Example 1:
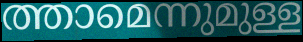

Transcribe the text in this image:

ത്താമെന്നുമുള്ള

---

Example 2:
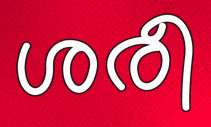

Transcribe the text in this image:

ശരീ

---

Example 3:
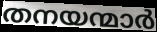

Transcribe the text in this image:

തനയന്മാർ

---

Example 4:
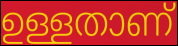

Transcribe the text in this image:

ഉള്ളതാണ്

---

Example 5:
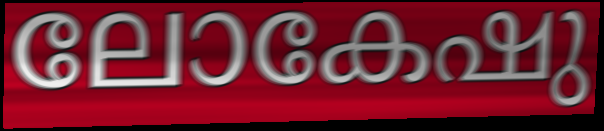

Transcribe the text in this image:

ലോകേഷു